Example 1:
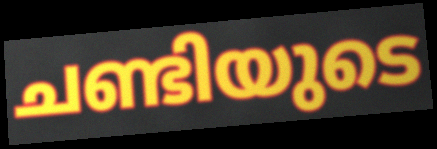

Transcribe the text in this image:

ചണ്ടിയുടെ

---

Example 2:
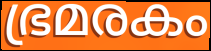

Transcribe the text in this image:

ഭ്രമരകം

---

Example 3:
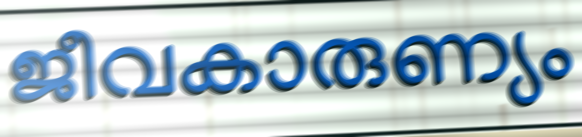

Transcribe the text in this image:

ജീവകാരുണ്യം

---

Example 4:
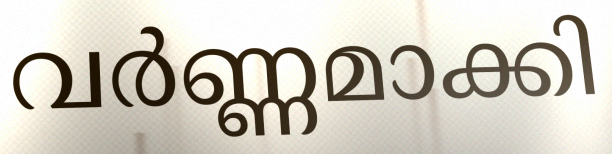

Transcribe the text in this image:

വർണ്ണമാക്കി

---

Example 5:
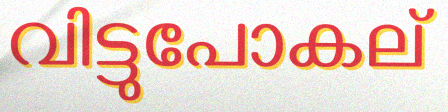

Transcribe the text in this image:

വിട്ടുപോകല്